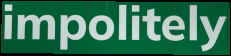
impolitely